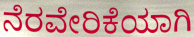
ನೆರವೇರಿಕೆಯಾಗಿ